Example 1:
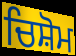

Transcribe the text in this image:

ਚਿਸ਼ੋਮ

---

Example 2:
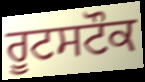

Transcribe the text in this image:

ਰੂਟਸਟੌਕ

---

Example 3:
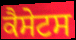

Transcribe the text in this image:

ਕੈਸੇਟਸ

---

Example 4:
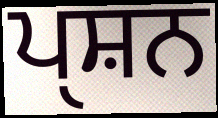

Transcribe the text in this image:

ਪੑਸ਼ਨ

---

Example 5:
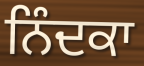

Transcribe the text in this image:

ਨਿੰਦਕਾ